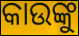
କାଉଙ୍କୁ